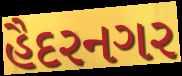
હૈદરનગર